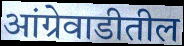
आंग्रेवाडीतील